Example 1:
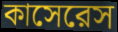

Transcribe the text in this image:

কাসেরেস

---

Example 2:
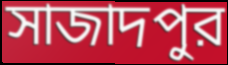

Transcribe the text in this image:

সাজাদপুর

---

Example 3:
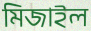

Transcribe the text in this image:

মিজাইল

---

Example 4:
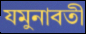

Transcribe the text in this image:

যমুনাবতী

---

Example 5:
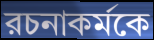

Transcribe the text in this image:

রচনাকর্মকে